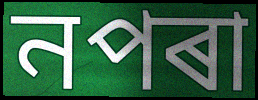
নপৰা